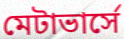
মেটাভার্সে